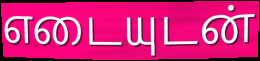
எடையுடன்